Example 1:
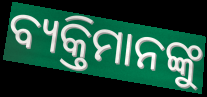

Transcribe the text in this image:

ବ୍ୟକ୍ତିମାନଙ୍କୁ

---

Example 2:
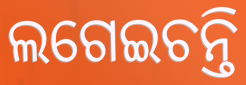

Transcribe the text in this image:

ଲଗେଇଚନ୍ତି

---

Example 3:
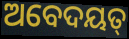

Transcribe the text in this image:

ଅବେଦୟତ୍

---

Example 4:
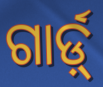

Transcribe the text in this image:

ଗାର୍ଡ଼୍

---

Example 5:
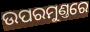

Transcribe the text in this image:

ଉପରମୁଣ୍ତରେ